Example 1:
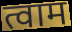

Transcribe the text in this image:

त्वाम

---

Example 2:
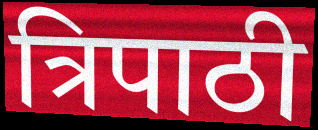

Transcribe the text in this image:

त्रिपाठी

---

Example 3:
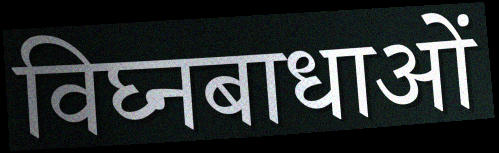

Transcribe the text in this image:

विघ्नबाधाओं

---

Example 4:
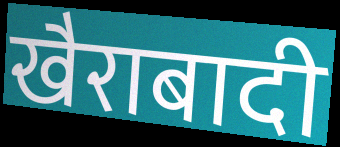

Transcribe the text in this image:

खैराबादी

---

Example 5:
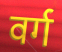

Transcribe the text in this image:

वर्ग